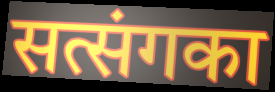
सत्संगका